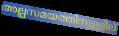
അല്പസമയത്തിനുള്ളില്